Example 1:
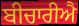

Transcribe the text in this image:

ਬੀਚਾਰੀਐ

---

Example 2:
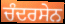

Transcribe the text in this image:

ਚੰਦਰਸੇਨ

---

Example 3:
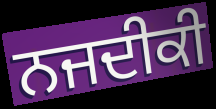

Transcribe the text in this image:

ਨਜਦੀਕੀ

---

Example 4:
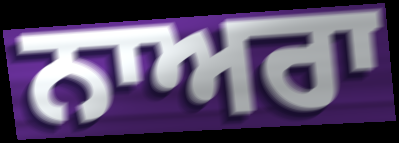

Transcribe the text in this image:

ਨਾਅਰਾ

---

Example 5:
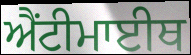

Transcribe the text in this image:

ਐਂਟੀਮਾਈਥ